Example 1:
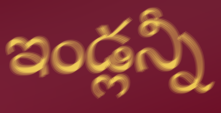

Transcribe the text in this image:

ఇండ్లన్నీ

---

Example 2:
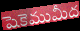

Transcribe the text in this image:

షెకెముమీద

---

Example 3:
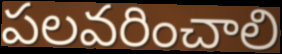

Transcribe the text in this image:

పలవరించాలి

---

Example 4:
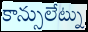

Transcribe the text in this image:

కాన్సులేట్ను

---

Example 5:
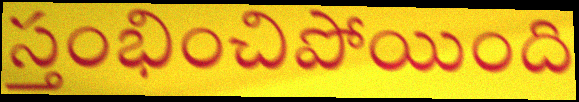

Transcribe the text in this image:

స్తంభించిపోయింది